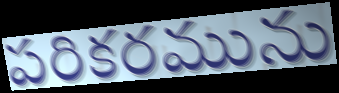
పరికరమును